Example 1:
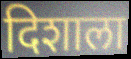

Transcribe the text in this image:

दिशाला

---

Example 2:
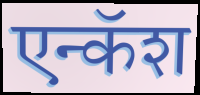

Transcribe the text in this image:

एन्कॅश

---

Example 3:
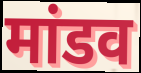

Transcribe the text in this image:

मांडव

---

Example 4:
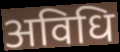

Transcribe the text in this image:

अविधि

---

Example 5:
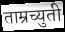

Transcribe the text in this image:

ताम्रच्युती